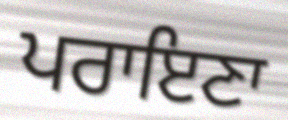
ਪਰਾਇਣਾ